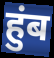
हुंब